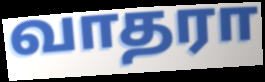
வாதரா